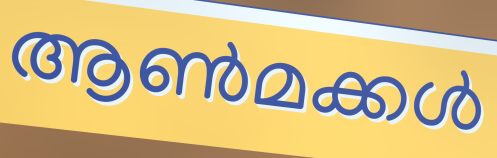
ആൺമക്കൾ